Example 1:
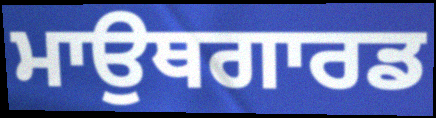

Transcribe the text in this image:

ਮਾਉਥਗਾਰਡ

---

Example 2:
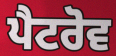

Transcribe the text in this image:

ਪੈਟਰੋਵ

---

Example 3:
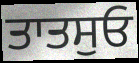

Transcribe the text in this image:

ਤਾਤਸੁਓ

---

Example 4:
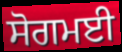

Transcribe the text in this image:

ਸੋਗਮਈ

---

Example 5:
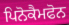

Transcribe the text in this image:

ਪਿਨੋਕੈਮਫੋਨ